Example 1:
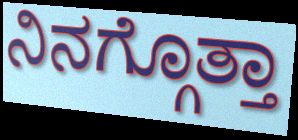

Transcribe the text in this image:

ನಿನಗ್ಗೊತ್ತಾ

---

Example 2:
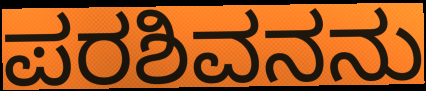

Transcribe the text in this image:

ಪರಶಿವನನು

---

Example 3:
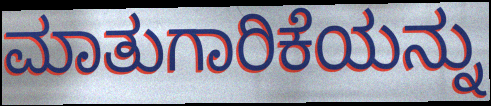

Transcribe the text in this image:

ಮಾತುಗಾರಿಕೆಯನ್ನು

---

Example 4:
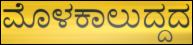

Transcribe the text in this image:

ಮೊಳಕಾಲುದ್ದದ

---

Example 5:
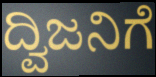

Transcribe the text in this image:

ದ್ವಿಜನಿಗೆ